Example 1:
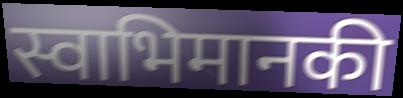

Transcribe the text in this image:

स्वाभिमानकी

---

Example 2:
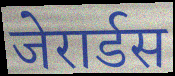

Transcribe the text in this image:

जेरार्डस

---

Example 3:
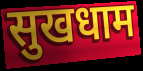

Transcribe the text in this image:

सुखधाम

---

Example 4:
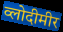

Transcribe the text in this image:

व्लोदीमीर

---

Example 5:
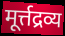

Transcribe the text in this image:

मूर्त्तद्रव्य